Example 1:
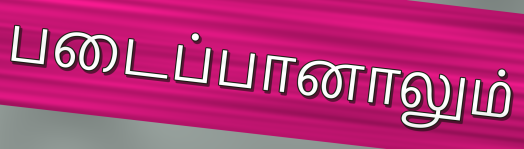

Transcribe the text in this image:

படைப்பானாலும்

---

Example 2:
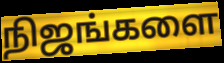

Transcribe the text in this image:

நிஜங்களை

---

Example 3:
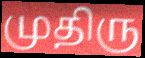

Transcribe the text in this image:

முதிரு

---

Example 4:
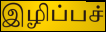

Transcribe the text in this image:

இழிப்பச்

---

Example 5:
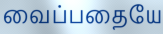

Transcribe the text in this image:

வைப்பதையே